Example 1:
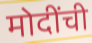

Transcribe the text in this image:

मोदींची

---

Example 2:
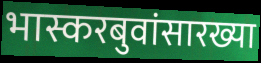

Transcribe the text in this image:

भास्करबुवांसारख्या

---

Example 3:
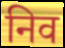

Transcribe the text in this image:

निव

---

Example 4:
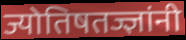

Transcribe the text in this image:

ज्योतिषतज्ज्ञांनी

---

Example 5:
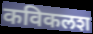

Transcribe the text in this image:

कविकलश